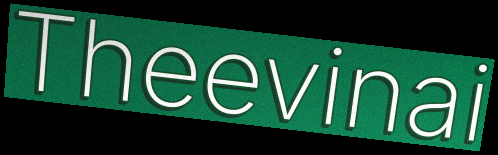
Theevinai